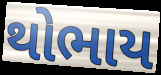
થોભાય